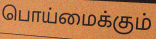
பொய்மைக்கும்